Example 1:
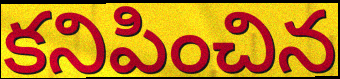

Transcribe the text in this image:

కనిపించిన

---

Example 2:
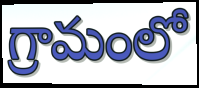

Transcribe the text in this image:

గ్రామంలో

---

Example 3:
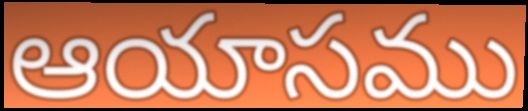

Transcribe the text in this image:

ఆయాసము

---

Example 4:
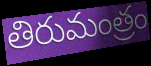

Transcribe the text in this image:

తిరుమంత్రం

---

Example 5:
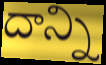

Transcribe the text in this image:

దాన్ని